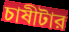
চাষীটার